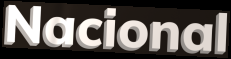
Nacional